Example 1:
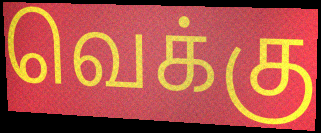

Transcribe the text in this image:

வெக்கு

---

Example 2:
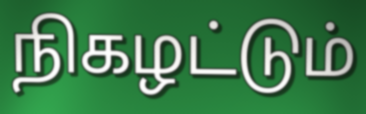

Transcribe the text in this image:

நிகழட்டும்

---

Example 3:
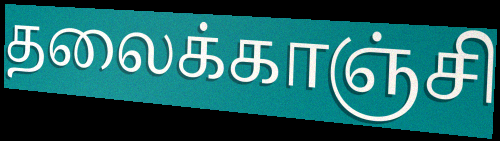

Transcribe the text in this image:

தலைக்காஞ்சி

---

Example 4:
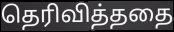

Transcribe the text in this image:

தெரிவித்ததை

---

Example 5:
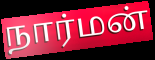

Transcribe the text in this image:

நார்மன்